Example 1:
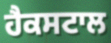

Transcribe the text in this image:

ਹੈਕਸਟਾਲ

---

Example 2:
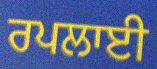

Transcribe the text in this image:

ਰਪਲਾਈ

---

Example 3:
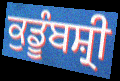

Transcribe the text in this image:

ਕੁਡੂੰਬਸ਼੍ਰੀ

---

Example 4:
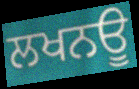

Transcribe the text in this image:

ਲਖਨਊ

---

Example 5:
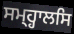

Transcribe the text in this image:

ਸਮ੍ਹ੍ਹਾਲਸਿ